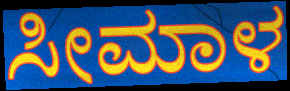
ಸೀಮಾಳ